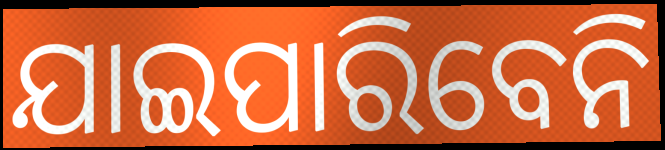
ଯାଇପାରିବେନି